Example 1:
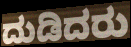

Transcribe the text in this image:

ದುಡಿದರು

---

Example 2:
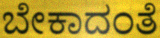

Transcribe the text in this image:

ಬೇಕಾದಂತೆ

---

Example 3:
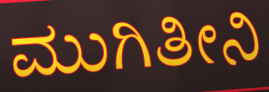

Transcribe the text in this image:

ಮುಗಿತೀನಿ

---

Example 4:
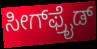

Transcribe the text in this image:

ಸೀಗ್‌ಫ್ರೈಡ್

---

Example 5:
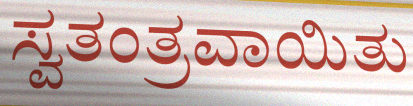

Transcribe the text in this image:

ಸ್ವತಂತ್ರವಾಯಿತು